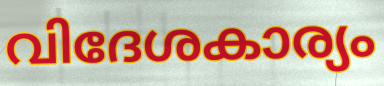
വിദേശകാര്യം